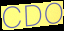
CDO